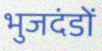
भुजदंडों